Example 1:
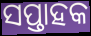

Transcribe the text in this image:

ସପ୍ତାହକ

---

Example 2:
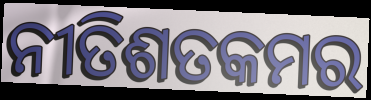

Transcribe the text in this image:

ନୀତିଶତକମର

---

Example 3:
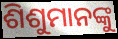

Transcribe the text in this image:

ଶିଶୁମାନଙ୍କୁ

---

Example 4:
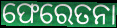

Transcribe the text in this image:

ଫେରେତନା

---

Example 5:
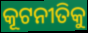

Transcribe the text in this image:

କୂଟନୀତିକୁ